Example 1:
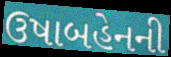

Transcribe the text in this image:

ઉષાબહેનની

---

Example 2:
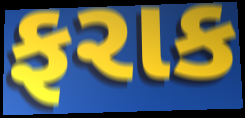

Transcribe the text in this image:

ફરાક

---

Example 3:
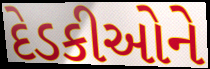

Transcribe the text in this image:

દેડકીઓને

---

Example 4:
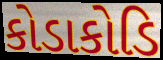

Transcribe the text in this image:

કોડાકોડિ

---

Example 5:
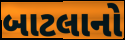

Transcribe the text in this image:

બાટલાનો